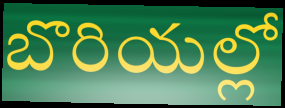
బొరియల్లో